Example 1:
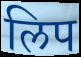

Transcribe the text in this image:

लिप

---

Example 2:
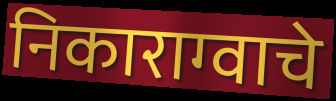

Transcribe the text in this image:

निकाराग्वाचे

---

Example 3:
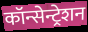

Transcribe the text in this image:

कॉन्सेन्ट्रेशन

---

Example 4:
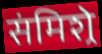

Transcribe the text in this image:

संमिश्रे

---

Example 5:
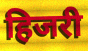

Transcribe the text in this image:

हिजरी